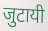
जुटायी